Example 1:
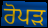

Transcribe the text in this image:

ਰੋਪੜ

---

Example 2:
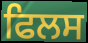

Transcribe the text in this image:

ਫਿਲਸ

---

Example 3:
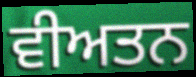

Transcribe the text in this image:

ਵੀਅਤਨ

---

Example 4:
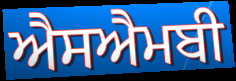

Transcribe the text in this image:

ਐਸਐਮਬੀ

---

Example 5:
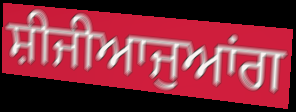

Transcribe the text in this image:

ਸ਼ੀਜੀਆਜੁਆਂਗ